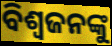
ବିଶ୍ୱଜନଙ୍କୁ